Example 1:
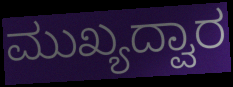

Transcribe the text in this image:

ಮುಖ್ಯದ್ವಾರ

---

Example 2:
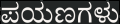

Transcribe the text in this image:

ಪಯಣಗಳು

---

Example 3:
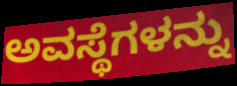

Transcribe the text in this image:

ಅವಸ್ಥೆಗಳನ್ನು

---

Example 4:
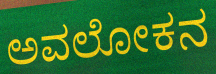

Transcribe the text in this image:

ಅವಲೋಕನ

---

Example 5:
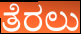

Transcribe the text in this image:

ತೆರಲು